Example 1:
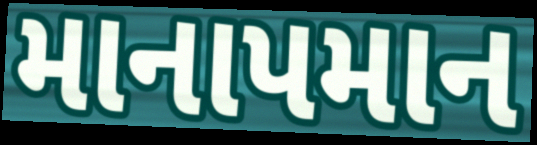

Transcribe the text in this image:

માનાપમાન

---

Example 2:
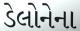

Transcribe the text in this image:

ડેલોનેના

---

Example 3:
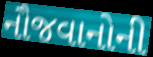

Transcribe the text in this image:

નૌજવાનોની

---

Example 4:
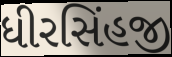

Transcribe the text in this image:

ધીરસિંહજી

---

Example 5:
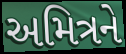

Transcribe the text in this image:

અમિત્રને